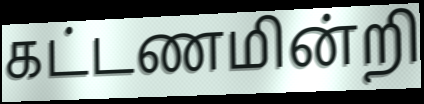
கட்டணமின்றி